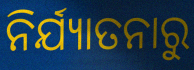
ନିର୍ଯ୍ୟାତନାରୁ